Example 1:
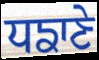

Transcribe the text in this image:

ਧਙਾਣੇ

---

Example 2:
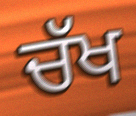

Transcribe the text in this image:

ਚੱਖ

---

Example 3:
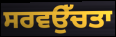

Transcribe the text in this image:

ਸਰਵਉੱਚਤਾ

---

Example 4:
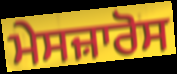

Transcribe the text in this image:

ਮੇਸਜ਼ਾਰੋਸ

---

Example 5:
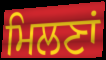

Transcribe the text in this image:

ਮਿਲਣਾਂ